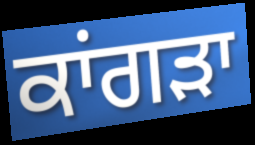
ਕਾਂਗਡ਼ਾ